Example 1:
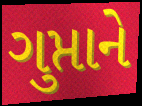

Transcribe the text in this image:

ગુપ્તાને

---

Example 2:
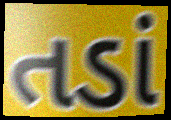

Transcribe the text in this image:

તડાં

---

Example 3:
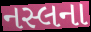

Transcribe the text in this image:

નસ્લના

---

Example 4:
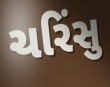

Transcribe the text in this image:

ચરિંસુ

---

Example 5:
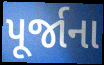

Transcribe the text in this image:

પૂર્જાના